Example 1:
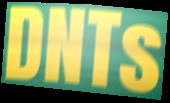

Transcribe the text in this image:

DNTs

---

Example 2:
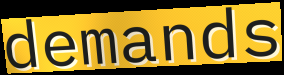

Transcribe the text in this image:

demands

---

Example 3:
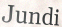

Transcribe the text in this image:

Jundi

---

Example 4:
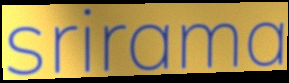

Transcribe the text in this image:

srirama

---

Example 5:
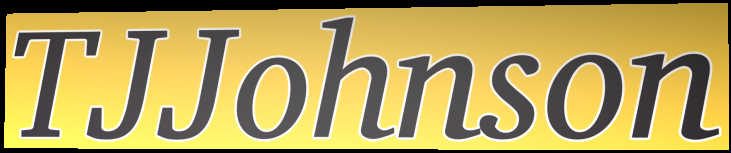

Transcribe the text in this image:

TJJohnson